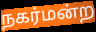
நகர்மன்ற